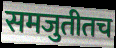
समजुतीतच